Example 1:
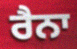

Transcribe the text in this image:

ਰੈਨਾ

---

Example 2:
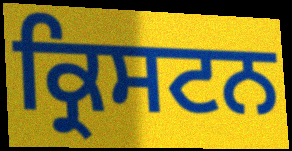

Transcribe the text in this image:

ਕ੍ਰਿਸਟਨ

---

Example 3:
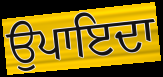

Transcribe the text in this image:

ਉਪਾਇਦਾ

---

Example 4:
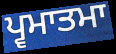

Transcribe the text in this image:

ਪ੍ਵਮਾਤਮਾ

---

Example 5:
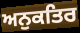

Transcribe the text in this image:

ਅਨੁਕਤਿਰ